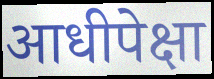
आधीपेक्षा